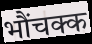
भौंचक्क